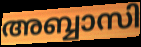
അബ്ബാസി